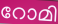
റോമി